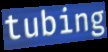
tubing